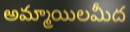
అమ్మాయిలమీద